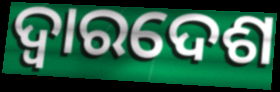
ଦ୍ୱାରଦେଶ